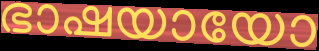
ഭാഷയായോ